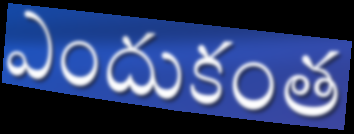
ఎందుకంత